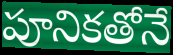
పూనికతోనే